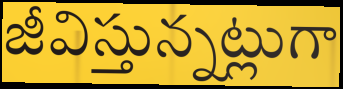
జీవిస్తున్నట్లుగా